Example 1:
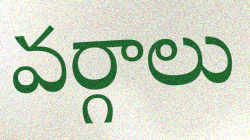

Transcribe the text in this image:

వర్గాలు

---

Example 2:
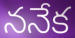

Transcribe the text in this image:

ననేక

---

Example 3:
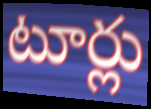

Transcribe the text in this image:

టూర్లు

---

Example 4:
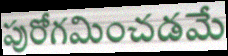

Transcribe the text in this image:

పురోగమించడమే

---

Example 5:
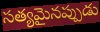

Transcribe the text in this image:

సత్యమైనప్పుడు